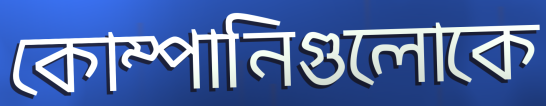
কোম্পানিগুলোকে